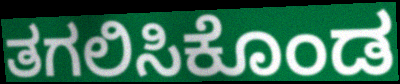
ತಗಲಿಸಿಕೊಂಡ